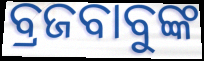
ବ୍ରଜବାବୁଙ୍କ